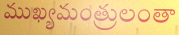
ముఖ్యమంత్రులంతా